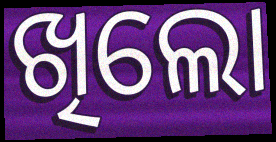
ଖିଲୋ